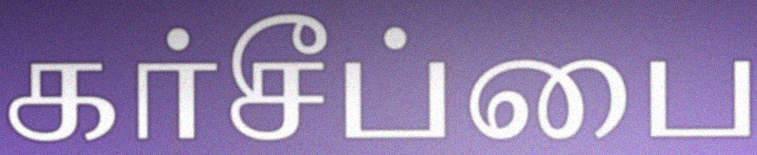
கர்சீப்பை